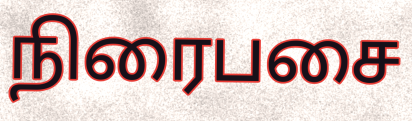
நிரைபசை